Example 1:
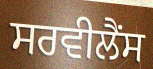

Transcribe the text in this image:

ਸਰਵੀਲੈਂਸ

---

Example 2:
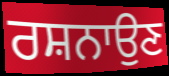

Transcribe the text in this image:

ਰਸ਼ਨਾਉਣ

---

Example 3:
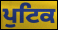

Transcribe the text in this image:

ਪੁਟਿਕ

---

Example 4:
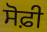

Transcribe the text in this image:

ਸੋਫ਼ੀ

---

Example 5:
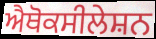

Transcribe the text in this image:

ਐਥੋਕਸੀਲੇਸ਼ਨ